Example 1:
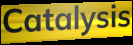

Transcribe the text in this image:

Catalysis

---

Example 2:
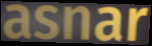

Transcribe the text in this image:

asnar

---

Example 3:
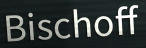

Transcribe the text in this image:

Bischoff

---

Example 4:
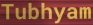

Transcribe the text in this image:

Tubhyam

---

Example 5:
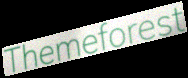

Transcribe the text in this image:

Themeforest